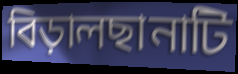
বিড়ালছানাটি